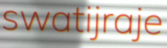
swatijraje